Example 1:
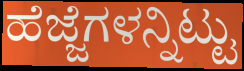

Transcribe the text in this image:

ಹೆಜ್ಜೆಗಳನ್ನಿಟ್ಟು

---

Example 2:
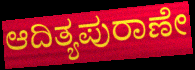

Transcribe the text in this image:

ಆದಿತ್ಯಪುರಾಣೇ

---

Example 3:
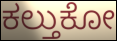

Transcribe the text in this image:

ಕಲ್ತುಕೋ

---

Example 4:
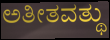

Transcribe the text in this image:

ಅತೀತವತ್ಥು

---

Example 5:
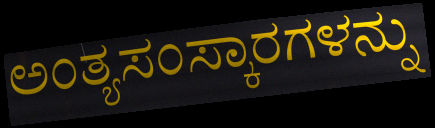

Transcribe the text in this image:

ಅಂತ್ಯಸಂಸ್ಕಾರಗಳನ್ನು